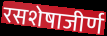
रसशेषाजीर्ण